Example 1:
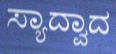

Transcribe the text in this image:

ಸ್ಯಾದ್ವಾದ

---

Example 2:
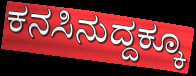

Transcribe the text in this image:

ಕನಸಿನುದ್ದಕ್ಕೂ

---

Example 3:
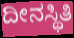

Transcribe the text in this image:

ದೀನಸ್ಥಿತಿ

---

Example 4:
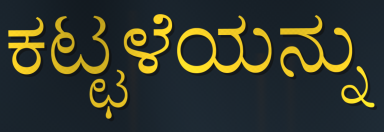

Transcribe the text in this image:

ಕಟ್ಟಳೆಯನ್ನು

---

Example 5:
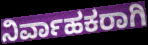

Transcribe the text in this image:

ನಿರ್ವಾಹಕರಾಗಿ